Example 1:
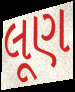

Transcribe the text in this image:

લૂણ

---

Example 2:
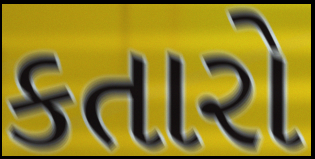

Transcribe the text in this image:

કતારો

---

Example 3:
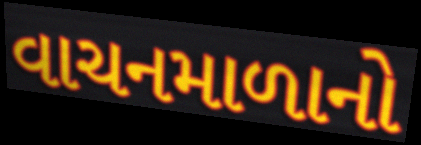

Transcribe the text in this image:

વાચનમાળાનો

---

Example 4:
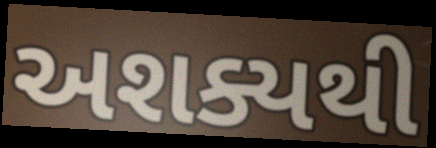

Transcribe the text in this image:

અશક્યથી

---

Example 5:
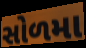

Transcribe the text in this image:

સોળમા